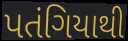
પતંગિયાથી